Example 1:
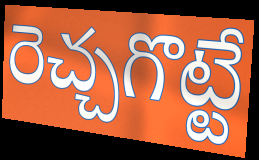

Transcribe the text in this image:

రెచ్చగొట్టే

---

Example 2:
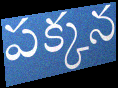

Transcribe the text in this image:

పక్కన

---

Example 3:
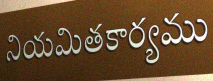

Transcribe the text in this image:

నియమితకార్యము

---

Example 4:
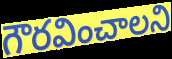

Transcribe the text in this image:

గౌరవించాలని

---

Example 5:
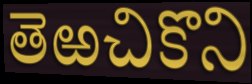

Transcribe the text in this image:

తెఱచికొని